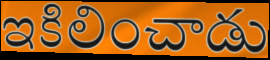
ఇకిలించాడు